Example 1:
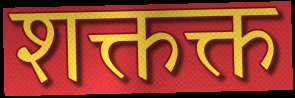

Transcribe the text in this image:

शक्तक्त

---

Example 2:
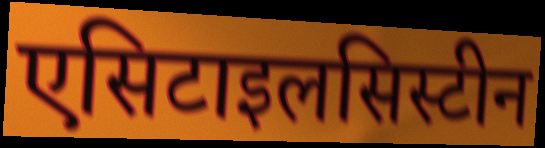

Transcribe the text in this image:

एसिटाइलसिस्टीन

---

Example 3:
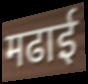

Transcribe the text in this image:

मढाई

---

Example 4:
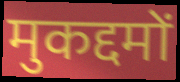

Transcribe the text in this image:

मुकद्दमों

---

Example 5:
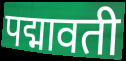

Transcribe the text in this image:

पद्मावती